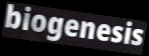
biogenesis